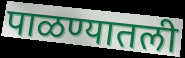
पाळण्यातली